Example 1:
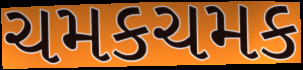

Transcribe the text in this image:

ચમકચમક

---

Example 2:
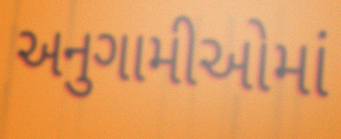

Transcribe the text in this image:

અનુગામીઓમાં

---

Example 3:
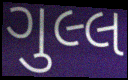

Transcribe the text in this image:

ગુલ્લ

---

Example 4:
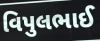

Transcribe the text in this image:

વિપુલભાઈ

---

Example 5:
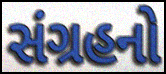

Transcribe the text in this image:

સંગ્રહનો